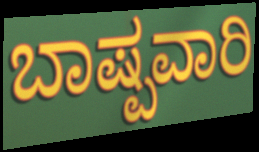
ಬಾಷ್ಪವಾರಿ